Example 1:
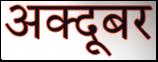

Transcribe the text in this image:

अक्दूबर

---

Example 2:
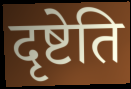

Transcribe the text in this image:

दृष्टेति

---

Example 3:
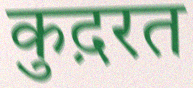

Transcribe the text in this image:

कुद़रत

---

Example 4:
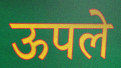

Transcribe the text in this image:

ऊपले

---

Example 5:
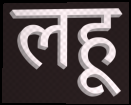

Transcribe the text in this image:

लहू